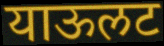
याऊलट